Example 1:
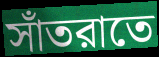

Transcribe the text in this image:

সাঁতরাতে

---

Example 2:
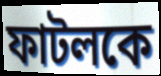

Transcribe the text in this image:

ফাটলকে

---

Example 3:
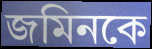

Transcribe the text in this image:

জমিনকে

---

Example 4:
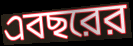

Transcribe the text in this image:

এবছরের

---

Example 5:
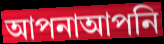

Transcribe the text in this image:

আপনাআপনি